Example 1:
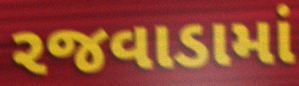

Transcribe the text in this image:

રજવાડામાં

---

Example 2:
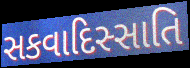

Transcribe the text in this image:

સકવાદિસ્સાતિ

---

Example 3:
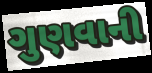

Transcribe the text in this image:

ગુણવાની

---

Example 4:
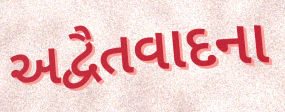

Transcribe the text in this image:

અદ્વૈતવાદના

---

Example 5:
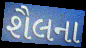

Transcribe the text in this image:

શૈલના